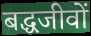
बद्धजीवों